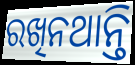
ରଖିନଥାନ୍ତି